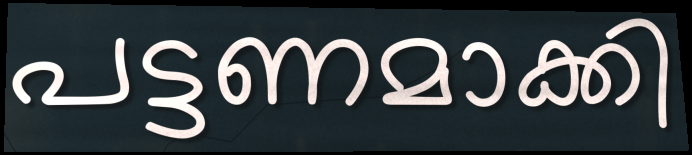
പട്ടണമാക്കി